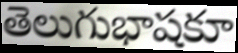
తెలుగుభాషకూ